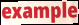
example